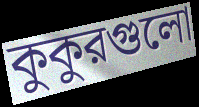
কুকুরগুলো